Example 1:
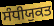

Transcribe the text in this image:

ਸੰਧੀਯੁਕਤ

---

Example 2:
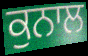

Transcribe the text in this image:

ਕੁਨਾਲ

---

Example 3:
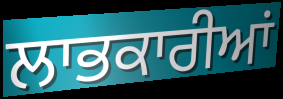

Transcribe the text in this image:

ਲਾਭਕਾਰੀਆਂ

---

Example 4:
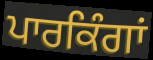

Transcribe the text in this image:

ਪਾਰਕਿੰਗਾਂ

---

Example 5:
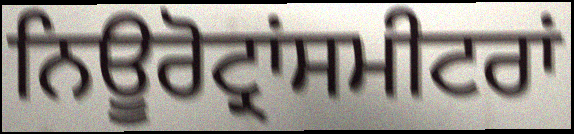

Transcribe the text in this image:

ਨਿਊਰੋਟ੍ਰਾਂਸਮੀਟਰਾਂ